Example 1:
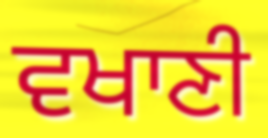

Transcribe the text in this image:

ਵਖਾਣੀ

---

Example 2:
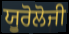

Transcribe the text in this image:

ਯੂਰੋਲੋਜੀ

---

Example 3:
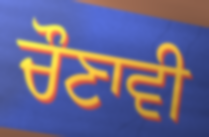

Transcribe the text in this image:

ਚੌਣਾਵੀ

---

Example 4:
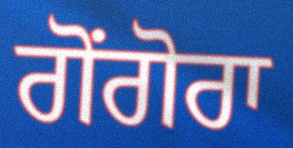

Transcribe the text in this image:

ਗੋਂਗੋਰਾ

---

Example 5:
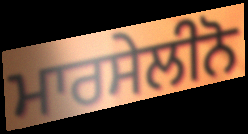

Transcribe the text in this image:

ਮਾਰਸੇਲੀਨੋ